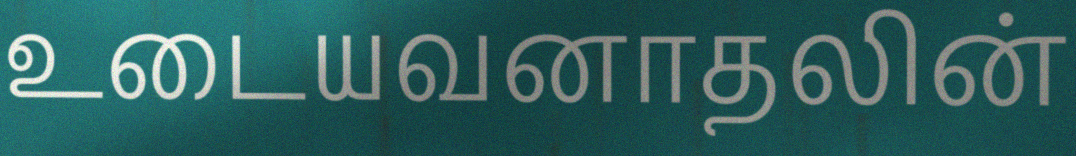
உடையவனாதலின்